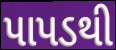
પાપડથી